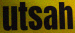
utsah